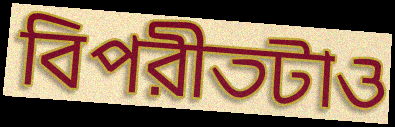
বিপরীতটাও